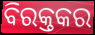
ବିରକ୍ତକର